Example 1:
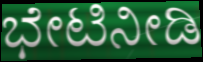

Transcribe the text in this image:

ಭೇಟಿನೀಡಿ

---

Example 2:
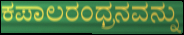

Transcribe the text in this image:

ಕಪಾಲರಂಧ್ರನವನ್ನು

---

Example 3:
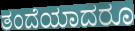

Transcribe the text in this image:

ತಂದೆಯಾದರೂ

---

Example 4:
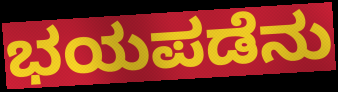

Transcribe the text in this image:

ಭಯಪಡೆನು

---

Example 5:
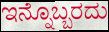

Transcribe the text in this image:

ಇನ್ನೊಬ್ಬರದು